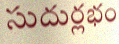
సుదుర్లభం